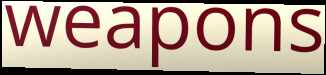
weapons